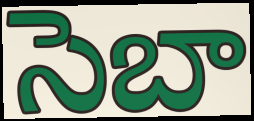
సెబా